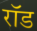
रॉड